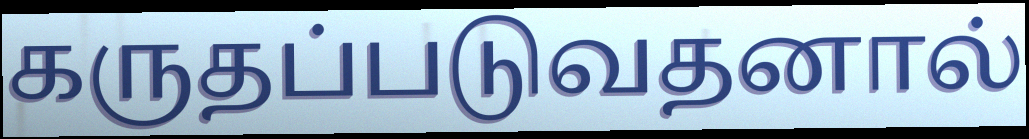
கருதப்படுவதனால்